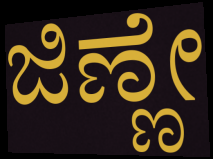
ಜಿಣ್ಣೇ